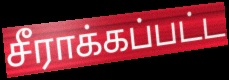
சீராக்கப்பட்ட